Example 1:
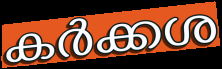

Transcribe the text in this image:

കർക്കശ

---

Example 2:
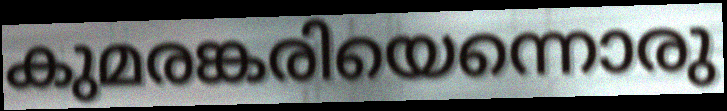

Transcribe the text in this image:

കുമരങ്കരിയെന്നൊരു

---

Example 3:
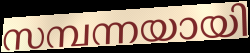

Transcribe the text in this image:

സമ്പന്നയായി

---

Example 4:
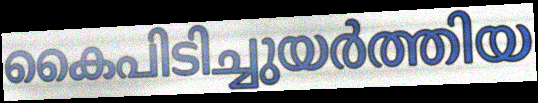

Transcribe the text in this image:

കൈപിടിച്ചുയർത്തിയ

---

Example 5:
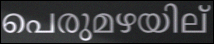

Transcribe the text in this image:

പെരുമഴയില്